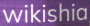
wikishia